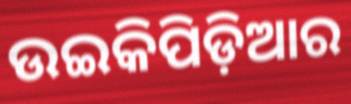
ଉଇକିପିଡ଼ିଆର